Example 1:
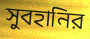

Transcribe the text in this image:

সুবহানির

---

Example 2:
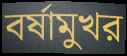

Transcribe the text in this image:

বর্ষামুখর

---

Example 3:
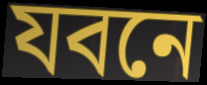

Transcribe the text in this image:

যবনে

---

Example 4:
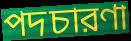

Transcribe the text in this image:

পদচারণা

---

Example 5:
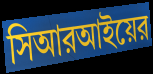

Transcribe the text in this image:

সিআরআইয়ের